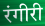
रंगीरी